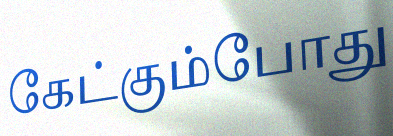
கேட்கும்போது